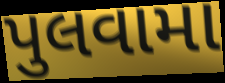
પુલવામા